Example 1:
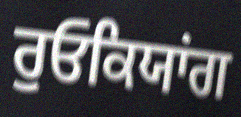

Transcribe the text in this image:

ਰੁਓਕਿਯਾਂਗ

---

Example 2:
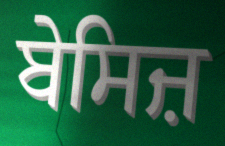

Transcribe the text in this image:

ਬੇਸਿਜ਼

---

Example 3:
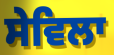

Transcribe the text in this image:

ਸੇਵਿਲਾ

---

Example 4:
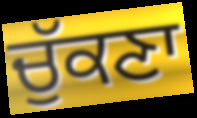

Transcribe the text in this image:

ਚੁੱਕਣਾ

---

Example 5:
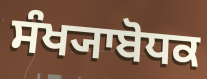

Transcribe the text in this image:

ਸੰਖ੍ਯਾਬੋਧਕ